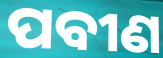
ପବୀଣ